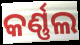
କର୍ଣ୍ଣଲ